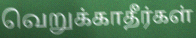
வெறுக்காதீர்கள்